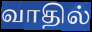
வாதில்